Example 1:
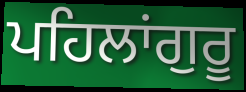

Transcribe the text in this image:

ਪਹਿਲਾਂਗੁਰੂ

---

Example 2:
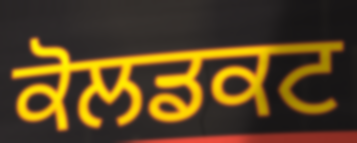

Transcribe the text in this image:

ਕੋਲਡਕਟ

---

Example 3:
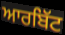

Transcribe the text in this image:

ਆਰਬਿੱਟ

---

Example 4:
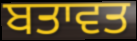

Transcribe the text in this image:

ਬਤਾਵਤ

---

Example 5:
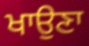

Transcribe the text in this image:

ਖਾਉਣਾ